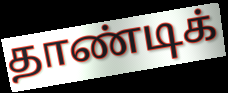
தாண்டிக்